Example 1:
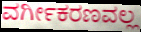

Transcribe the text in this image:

ವರ್ಗೀಕರಣವಲ್ಲ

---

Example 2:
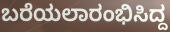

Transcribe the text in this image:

ಬರೆಯಲಾರಂಭಿಸಿದ್ದ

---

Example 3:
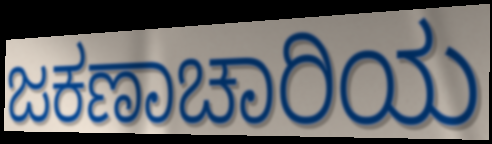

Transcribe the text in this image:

ಜಕಣಾಚಾರಿಯ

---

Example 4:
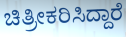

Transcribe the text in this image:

ಚಿತ್ರೀಕರಿಸಿದ್ದಾರೆ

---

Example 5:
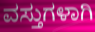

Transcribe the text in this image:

ವಸ್ತುಗಳಾಗಿ